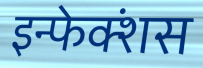
इन्फेक्शंस